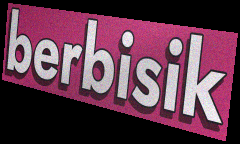
berbisik